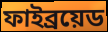
ফাইব্রয়েড